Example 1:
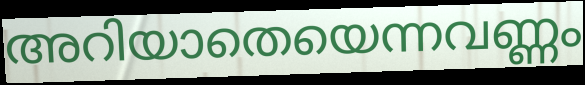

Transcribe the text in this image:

അറിയാതെയെന്നവണ്ണം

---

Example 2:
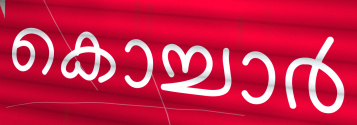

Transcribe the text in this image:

കൊച്ചാർ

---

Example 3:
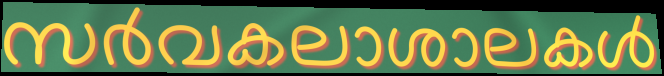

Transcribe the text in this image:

സർവകലാശാലകൾ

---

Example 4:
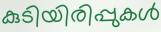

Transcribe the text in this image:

കുടിയിരിപ്പുകൾ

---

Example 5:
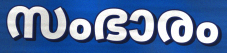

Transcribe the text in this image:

സംഭാരം